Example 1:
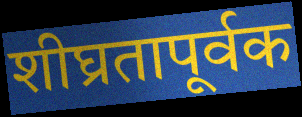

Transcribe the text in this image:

शीघ्रतापूर्वक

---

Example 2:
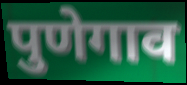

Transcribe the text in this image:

पुणेगाव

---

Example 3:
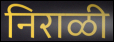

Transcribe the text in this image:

निराळी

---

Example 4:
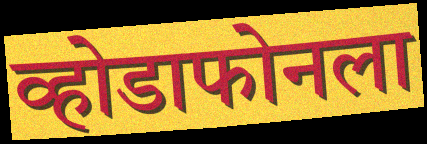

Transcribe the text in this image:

व्होडाफोनला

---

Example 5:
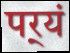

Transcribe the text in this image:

पर्यं